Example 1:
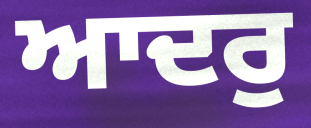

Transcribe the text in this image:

ਆਦਰੁ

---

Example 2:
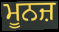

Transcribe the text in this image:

ਮੂਨਜ਼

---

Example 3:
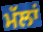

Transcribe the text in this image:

ਮੱਲਾਂ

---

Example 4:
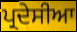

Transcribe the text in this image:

ਪ੍ਰਦੇਸੀਆ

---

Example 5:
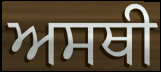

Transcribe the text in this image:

ਅਸਥੀ